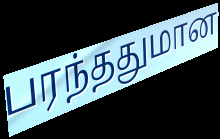
பரந்ததுமான